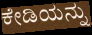
ಕೇಡಿಯನ್ನು